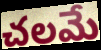
చలమే